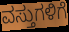
ವಸ್ತುಗಳಿಗೆ